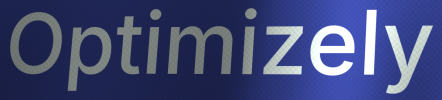
Optimizely